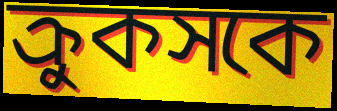
ক্রুকসকে